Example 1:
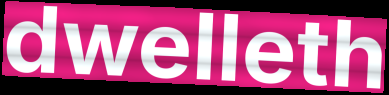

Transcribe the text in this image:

dwelleth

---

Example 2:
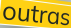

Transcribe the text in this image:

outras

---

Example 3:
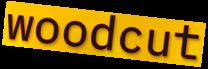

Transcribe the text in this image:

woodcut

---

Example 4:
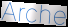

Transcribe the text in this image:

Arche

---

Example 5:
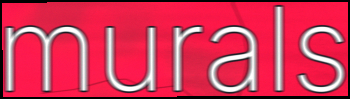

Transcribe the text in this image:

murals